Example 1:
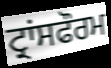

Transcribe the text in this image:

ਟ੍ਰਾਂਸਫੌਰਮ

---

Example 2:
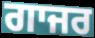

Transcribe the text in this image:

ਗਾਜਰ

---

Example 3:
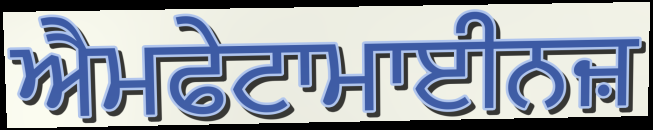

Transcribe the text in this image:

ਐਮਫੇਟਾਮਾਈਨਜ਼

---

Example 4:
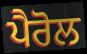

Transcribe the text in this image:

ਪੈਰੋਲ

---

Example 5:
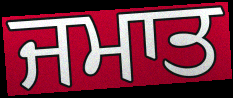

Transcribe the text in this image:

ਜਮਾਤ